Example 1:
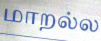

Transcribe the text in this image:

மாறல்ல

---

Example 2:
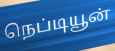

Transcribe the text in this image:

நெப்டியூன்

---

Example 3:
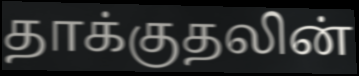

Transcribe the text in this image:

தாக்குதலின்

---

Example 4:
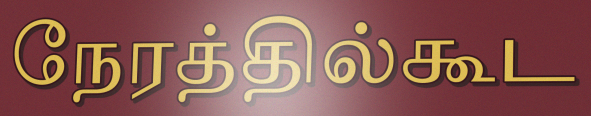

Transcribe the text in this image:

நேரத்தில்கூட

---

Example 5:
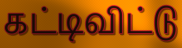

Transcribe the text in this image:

கட்டிவிட்டு